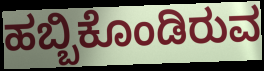
ಹಬ್ಬಿಕೊಂಡಿರುವ